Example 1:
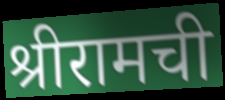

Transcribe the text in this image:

श्रीरामची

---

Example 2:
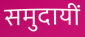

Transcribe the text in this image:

समुदायीं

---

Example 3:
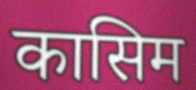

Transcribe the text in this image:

कासिम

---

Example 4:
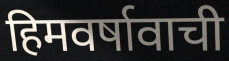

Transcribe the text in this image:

हिमवर्षावाची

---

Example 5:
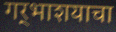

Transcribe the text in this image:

गर्भाशयाचा